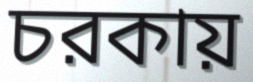
চরকায়